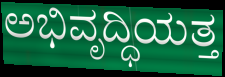
ಅಭಿವೃದ್ಧಿಯತ್ತ